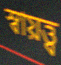
স্বায়ত্ত্ব